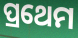
ପ୍ରଥେମ